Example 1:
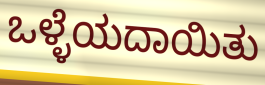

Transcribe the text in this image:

ಒಳ್ಳೆಯದಾಯಿತು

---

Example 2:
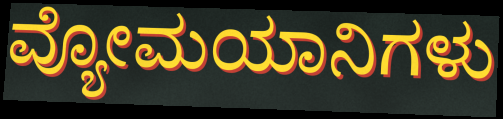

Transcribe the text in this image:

ವ್ಯೋಮಯಾನಿಗಳು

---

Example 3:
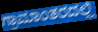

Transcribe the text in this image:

ಗ್ರಾಮಾಂತರದಲ್ಲಿ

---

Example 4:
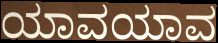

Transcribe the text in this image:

ಯಾವಯಾವ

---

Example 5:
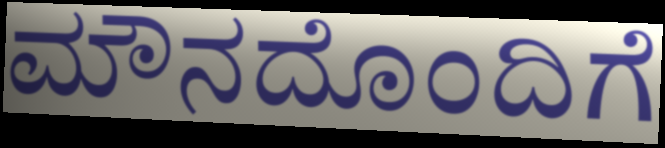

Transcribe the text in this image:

ಮೌನದೊಂದಿಗೆ